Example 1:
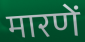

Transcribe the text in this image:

मारणें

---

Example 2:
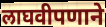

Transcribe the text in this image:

लाघवीपणाने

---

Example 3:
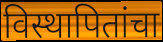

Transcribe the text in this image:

विस्थापितांचा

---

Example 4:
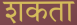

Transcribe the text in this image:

शकता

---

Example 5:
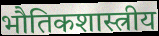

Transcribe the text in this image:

भौतिकशास्त्रीय